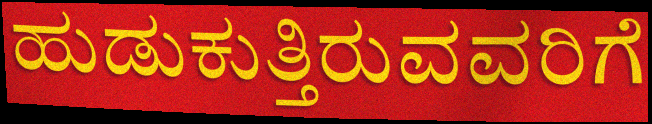
ಹುಡುಕುತ್ತಿರುವವರಿಗೆ